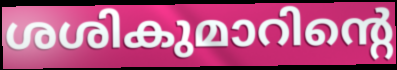
ശശികുമാറിന്റെ